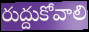
రుద్దుకోవాలి